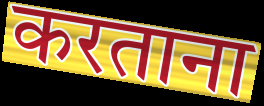
करताना